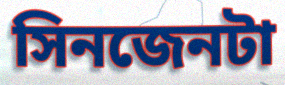
সিনজেনটা